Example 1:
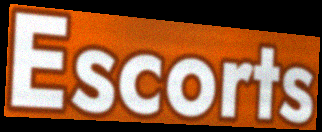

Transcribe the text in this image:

Escorts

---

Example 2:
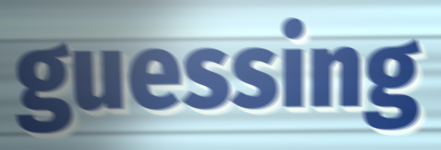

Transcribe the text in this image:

guessing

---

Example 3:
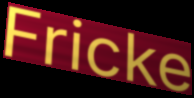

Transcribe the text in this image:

Fricke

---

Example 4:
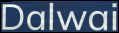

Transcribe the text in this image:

Dalwai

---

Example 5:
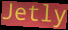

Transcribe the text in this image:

Jetly